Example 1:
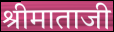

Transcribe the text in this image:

श्रीमाताजी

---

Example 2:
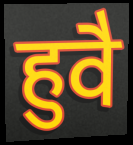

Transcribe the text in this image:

हुवै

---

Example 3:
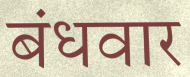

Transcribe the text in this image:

बंधवार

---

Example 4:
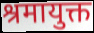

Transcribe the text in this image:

श्रमायुक्त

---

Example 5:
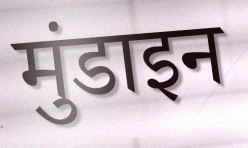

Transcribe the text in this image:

मुंडाइन